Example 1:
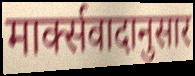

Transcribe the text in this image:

मार्क्सवादानुसार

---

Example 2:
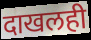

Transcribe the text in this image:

दाखलही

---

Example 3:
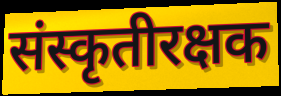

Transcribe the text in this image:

संस्कृतीरक्षक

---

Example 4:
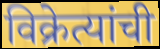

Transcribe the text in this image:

विक्रेत्यांची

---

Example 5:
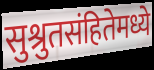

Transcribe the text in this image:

सुश्रुतसंहितेमध्ये